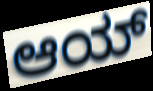
ಆಯ್